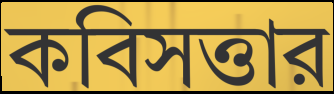
কবিসত্তার